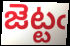
జెట్టఁ